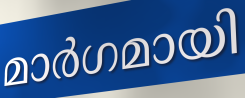
മാർഗമായി